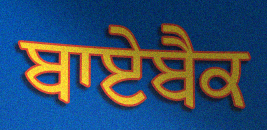
ਬਾਏਬੈਕ